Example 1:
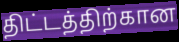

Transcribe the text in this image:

திட்டத்திற்கான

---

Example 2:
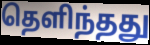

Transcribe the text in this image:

தெளிந்தது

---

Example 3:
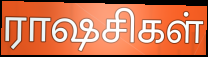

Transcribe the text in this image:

ராஷசிகள்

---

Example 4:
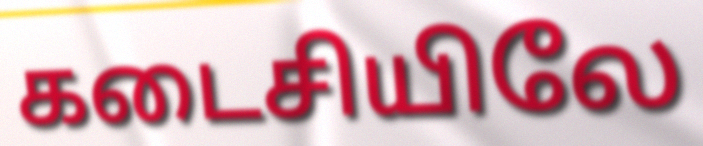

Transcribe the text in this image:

கடைசியிலே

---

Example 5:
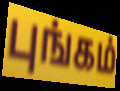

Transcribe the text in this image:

புங்கம்